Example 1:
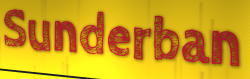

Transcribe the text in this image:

Sunderban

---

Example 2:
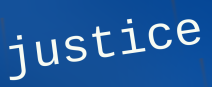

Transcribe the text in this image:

justice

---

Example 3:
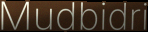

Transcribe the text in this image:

Mudbidri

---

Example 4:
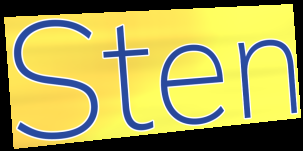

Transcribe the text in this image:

Sten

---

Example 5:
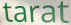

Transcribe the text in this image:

tarat